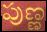
పుణ్ణ